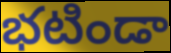
భటిండా